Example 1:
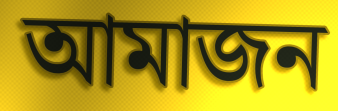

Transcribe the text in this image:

আমাজন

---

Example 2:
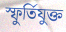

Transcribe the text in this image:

স্ফুর্তিযুক্ত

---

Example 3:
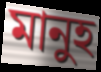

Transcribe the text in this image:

মানুহ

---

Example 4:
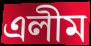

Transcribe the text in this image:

এলীম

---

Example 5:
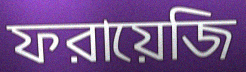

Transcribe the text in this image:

ফরায়েজি